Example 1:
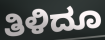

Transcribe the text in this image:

ತಿಳಿದೂ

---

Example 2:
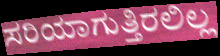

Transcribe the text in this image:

ಸರಿಯಾಗುತ್ತಿರಲಿಲ್ಲ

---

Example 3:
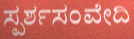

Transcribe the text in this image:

ಸ್ಪರ್ಶಸಂವೇದಿ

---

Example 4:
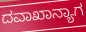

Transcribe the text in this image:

ದವಾಖಾನ್ಯಾಗ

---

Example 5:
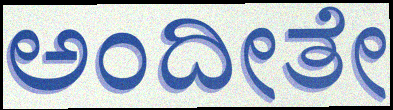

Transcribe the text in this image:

ಅಂದೀತೇ